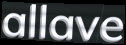
allave